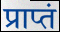
प्राप्तं